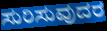
ಸುರಿಸುವುದರ